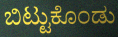
ಬಿಟ್ಟುಕೊಂಡು